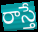
రాస్తే